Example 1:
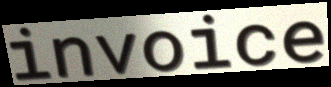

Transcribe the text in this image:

invoice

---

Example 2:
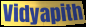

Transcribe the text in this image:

Vidyapith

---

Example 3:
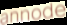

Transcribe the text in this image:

annode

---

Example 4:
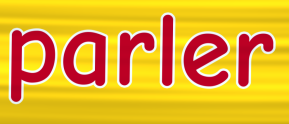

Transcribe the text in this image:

parler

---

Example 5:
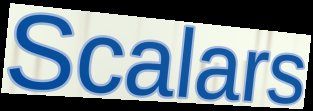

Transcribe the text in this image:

Scalars